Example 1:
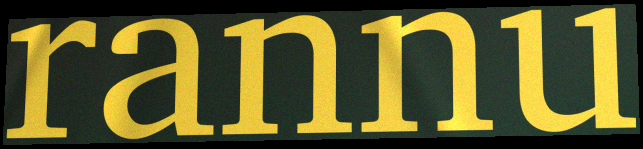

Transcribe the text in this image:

rannu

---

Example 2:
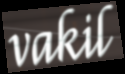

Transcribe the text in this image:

vakil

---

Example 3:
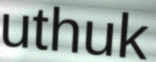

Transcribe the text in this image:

uthuk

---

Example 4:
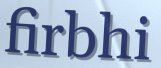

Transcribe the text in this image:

firbhi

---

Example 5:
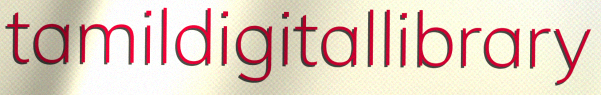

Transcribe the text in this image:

tamildigitallibrary